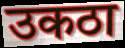
उकठा